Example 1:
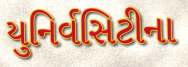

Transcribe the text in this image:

યુનિર્વસિટીના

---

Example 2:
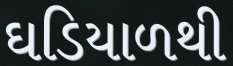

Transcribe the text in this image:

ઘડિયાળથી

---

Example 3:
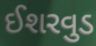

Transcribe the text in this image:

ઈશરવુડ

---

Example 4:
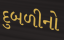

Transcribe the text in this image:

દુબળીનો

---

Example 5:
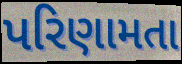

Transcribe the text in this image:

પરિણામતા